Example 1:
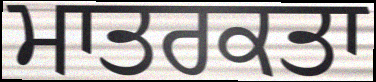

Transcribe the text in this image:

ਮਾਤਰਕਤਾ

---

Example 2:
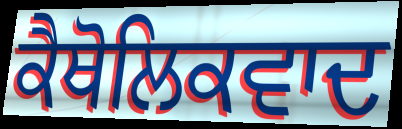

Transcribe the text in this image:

ਕੈਥੋਲਿਕਵਾਦ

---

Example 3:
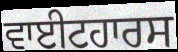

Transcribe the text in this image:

ਵਾਈਟਹਾਰਸ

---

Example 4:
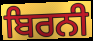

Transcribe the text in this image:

ਬਿਰਨੀ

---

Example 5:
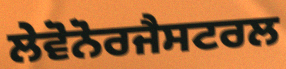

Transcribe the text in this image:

ਲੇਵੋਨੋਰਜੈਸਟਰਲ